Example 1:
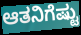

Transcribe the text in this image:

ಆತನಿಗೆಷ್ಟು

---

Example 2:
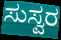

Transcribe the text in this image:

ಸುಸ್ವರ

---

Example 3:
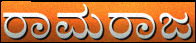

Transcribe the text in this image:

ರಾಮರಾಜ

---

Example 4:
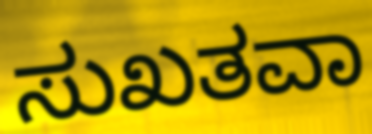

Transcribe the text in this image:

ಸುಖತವಾ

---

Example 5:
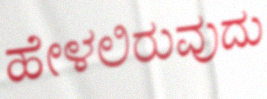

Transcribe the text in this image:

ಹೇಳಲಿರುವುದು